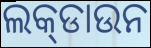
ଲକ୍‍ଡାଉନ